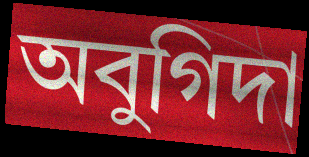
অবুগিদা